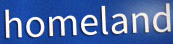
homeland